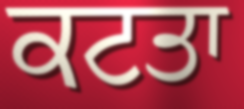
ਕਟਤਾ